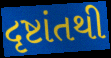
દૃષ્ટાંતથી